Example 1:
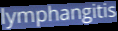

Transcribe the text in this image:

lymphangitis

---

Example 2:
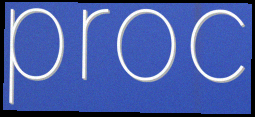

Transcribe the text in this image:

proc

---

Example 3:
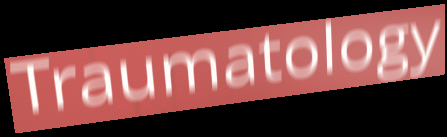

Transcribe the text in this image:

Traumatology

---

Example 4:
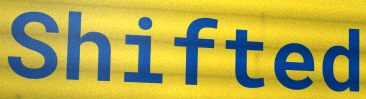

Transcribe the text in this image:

Shifted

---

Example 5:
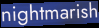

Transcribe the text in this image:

nightmarish